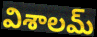
విశాలమ్